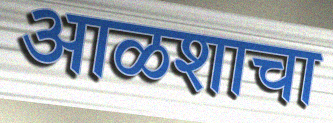
आळशाचा